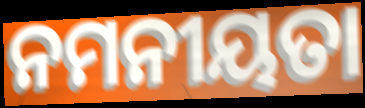
ନମନୀୟତା